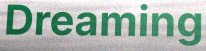
Dreaming